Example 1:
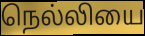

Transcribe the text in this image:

நெல்லியை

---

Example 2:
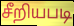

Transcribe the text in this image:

சீறியபடி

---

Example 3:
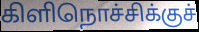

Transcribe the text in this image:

கிளிநொச்சிக்குச்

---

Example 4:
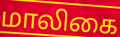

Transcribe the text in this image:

மாலிகை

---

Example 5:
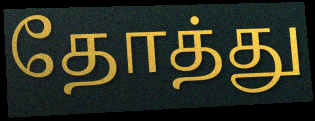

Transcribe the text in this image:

தோத்து